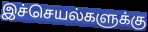
இச்செயல்களுக்கு